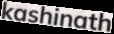
kashinath